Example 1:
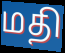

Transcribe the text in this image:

மதி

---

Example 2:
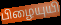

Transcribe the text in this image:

பிழையுயி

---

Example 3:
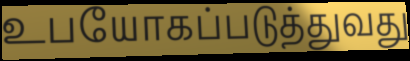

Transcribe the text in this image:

உபயோகப்படுத்துவது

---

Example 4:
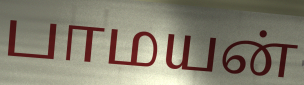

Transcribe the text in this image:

பாமயன்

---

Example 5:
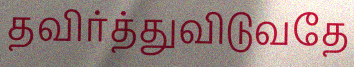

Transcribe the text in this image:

தவிர்த்துவிடுவதே